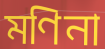
মণিনা